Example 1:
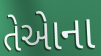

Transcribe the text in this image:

તેએાના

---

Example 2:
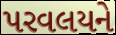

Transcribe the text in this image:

પરવલયને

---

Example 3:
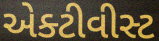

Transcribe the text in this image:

એક્ટીવીસ્ટ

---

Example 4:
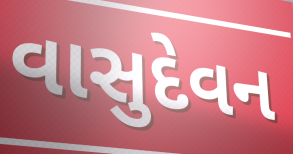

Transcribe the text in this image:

વાસુદેવન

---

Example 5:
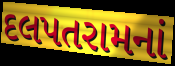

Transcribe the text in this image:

દલપતરામનાં